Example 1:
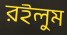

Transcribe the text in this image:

রইলুম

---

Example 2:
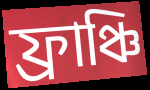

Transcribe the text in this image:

ফ্রাঞ্চি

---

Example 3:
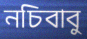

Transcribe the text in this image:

নচিবাবু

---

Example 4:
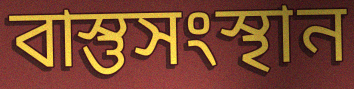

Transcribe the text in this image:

বাস্তুসংস্থান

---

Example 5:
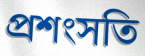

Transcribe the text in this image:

প্রশংসতি